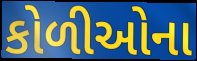
કોળીઓના